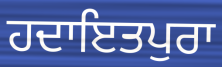
ਹਦਾਇਤਪੁਰਾ